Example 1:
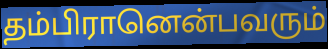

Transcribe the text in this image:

தம்பிரானென்பவரும்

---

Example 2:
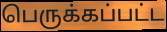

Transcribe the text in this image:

பெருக்கப்பட்ட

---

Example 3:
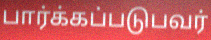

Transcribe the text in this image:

பார்க்கப்படுபவர்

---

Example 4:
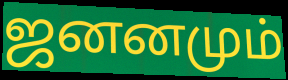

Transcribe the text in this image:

ஜனனமும்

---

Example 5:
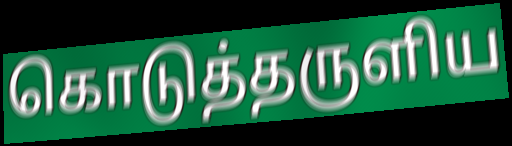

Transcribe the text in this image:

கொடுத்தருளிய